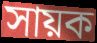
সায়ক